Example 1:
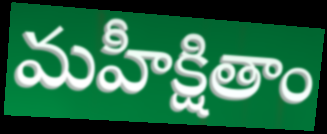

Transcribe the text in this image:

మహీక్షితాం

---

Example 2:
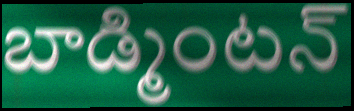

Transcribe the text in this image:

బాడ్మింటన్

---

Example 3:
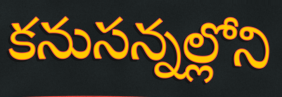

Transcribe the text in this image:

కనుసన్నల్లోని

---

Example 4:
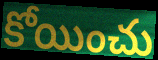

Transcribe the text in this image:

కోయించు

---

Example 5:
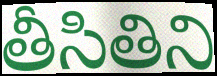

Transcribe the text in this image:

తీసితిని